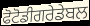
ਫੋਟੋਡੀਗਰੇਡੇਬਲ